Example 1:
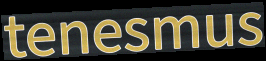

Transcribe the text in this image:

tenesmus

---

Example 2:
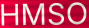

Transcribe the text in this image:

HMSO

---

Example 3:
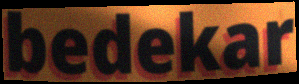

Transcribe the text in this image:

bedekar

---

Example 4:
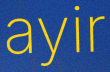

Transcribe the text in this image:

ayir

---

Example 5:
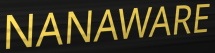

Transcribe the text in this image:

NANAWARE